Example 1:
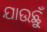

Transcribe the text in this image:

ଯାଉଛୁଁ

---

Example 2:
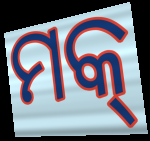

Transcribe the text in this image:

ମକ୍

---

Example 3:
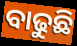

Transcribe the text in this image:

ବାଢୁଛି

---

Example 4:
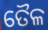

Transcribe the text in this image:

ତୈଳ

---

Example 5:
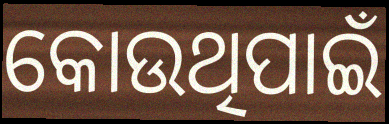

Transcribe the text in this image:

କୋଉଥିପାଇଁ